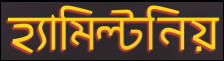
হ্যামিল্টনিয়